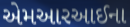
એમઆરઆઈના